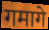
गमागे